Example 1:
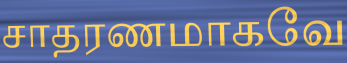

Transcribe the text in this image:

சாதரணமாகவே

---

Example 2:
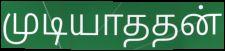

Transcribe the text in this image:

முடியாததன்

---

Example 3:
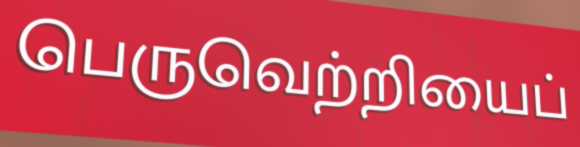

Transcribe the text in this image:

பெருவெற்றியைப்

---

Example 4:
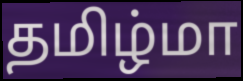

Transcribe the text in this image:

தமிழ்மா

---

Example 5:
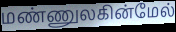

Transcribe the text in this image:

மண்ணுலகின்மேல்